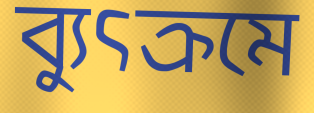
ব্যুৎক্রমে